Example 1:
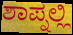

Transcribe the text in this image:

ಶಾಪ್ನಲ್ಲಿ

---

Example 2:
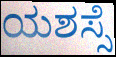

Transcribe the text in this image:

ಯಶಸ್ಸೆ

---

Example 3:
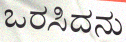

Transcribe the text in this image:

ಒರಸಿದನು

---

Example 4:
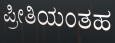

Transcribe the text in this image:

ಪ್ರೀತಿಯಂತಹ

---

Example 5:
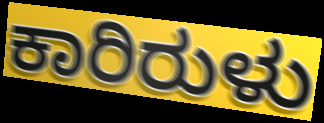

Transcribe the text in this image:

ಕಾರಿರುಳು